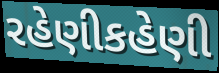
રહેણીકહેણી